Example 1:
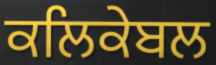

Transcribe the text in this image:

ਕਲਿਕੇਬਲ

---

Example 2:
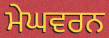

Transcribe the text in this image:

ਮੇਘਵਰਨ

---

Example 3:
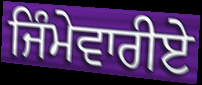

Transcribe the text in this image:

ਜਿੰਮੇਵਾਰੀਏ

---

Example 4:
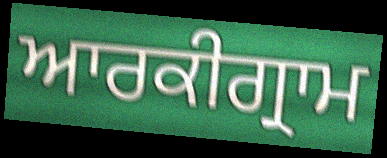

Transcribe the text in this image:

ਆਰਕੀਗ੍ਰਾਮ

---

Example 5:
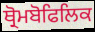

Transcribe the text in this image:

ਥ੍ਰੋਮਬੋਫਿਲਿਕ